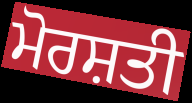
ਮੋਰਸ਼ਤੀ